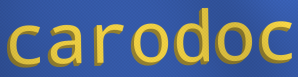
carodoc